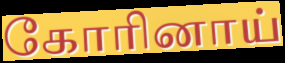
கோரினாய்